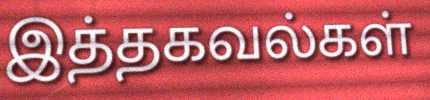
இத்தகவல்கள்